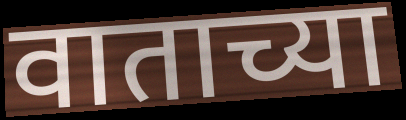
वाताच्या